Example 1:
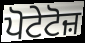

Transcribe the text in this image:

ਪੋਟੇਟੋਜ਼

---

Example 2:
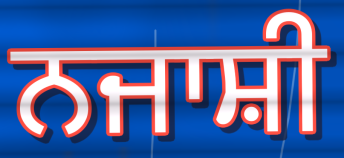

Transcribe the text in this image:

ਨਜਾਸ਼ੀ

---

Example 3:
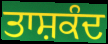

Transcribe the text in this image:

ਤਾਸ਼ਕੰਦ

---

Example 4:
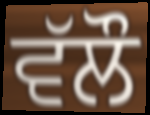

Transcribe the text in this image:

ਵੱਲੌ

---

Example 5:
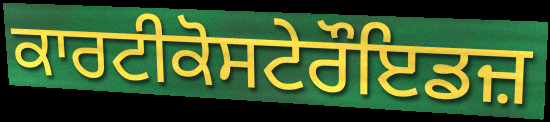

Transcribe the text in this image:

ਕਾਰਟੀਕੋਸਟੇਰੌਇਡਜ਼